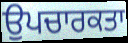
ਉਪਚਾਰਕਤਾ